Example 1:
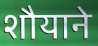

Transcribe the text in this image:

शौयाने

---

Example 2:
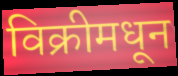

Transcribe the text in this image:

विक्रीमधून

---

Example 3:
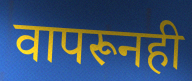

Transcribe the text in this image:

वापरूनही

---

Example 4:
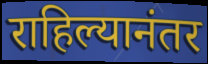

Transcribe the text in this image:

राहिल्यानंतर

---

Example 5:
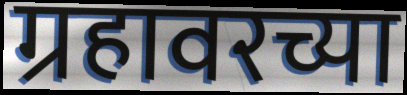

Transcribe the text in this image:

ग्रहावरच्या